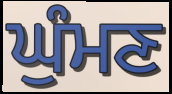
ਘੁੰਮਣ